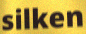
silken